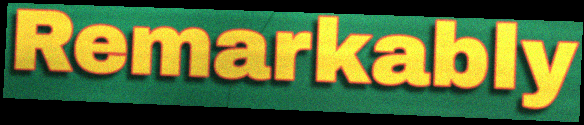
Remarkably